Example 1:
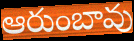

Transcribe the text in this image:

ఆరుంబావు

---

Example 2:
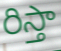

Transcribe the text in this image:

రిస్తా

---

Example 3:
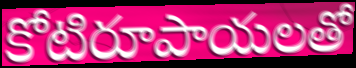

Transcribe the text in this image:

కోటిరూపాయలతో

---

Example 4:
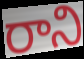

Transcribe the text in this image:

రాని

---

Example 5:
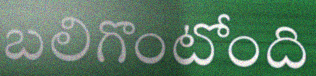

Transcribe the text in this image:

బలిగొంటోంది